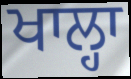
ਖਾਲ੍ਹਾ